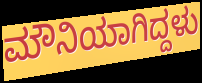
ಮೌನಿಯಾಗಿದ್ದಳು